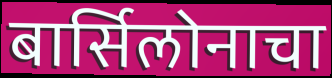
बार्सिलोनाचा